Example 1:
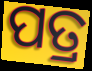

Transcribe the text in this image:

ପତ୍ର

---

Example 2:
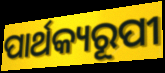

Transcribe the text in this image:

ପାର୍ଥକ୍ୟରୂପୀ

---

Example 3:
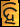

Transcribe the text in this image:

ହି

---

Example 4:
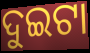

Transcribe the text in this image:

ଦୁଇଟା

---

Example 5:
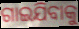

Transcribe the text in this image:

ଗାଇଯିବାକୁ